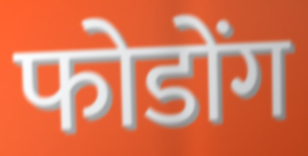
फोडोंग